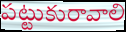
పట్టుకురావాలి